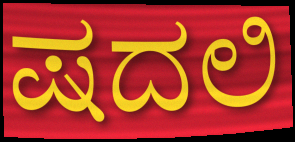
ಷದಲಿ